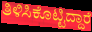
ತಿಳಿಸಿಕೊಟ್ಟಿದ್ದಾರೆ